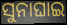
ସୁନାଘାଇ